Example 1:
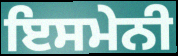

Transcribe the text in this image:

ਇਸਮੇਨੀ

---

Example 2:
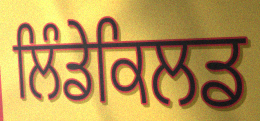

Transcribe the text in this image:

ਲਿੰਡੇਕਿਲਡ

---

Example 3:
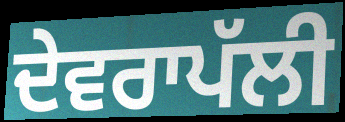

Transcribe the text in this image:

ਦੇਵਰਾਪੱਲੀ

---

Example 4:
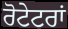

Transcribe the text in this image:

ਰੋਟੇਟਰਾਂ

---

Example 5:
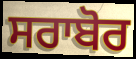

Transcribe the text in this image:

ਸਰਾਬੋਰ